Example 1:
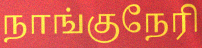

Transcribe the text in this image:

நாங்குநேரி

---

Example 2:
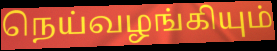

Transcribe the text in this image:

நெய்வழங்கியும்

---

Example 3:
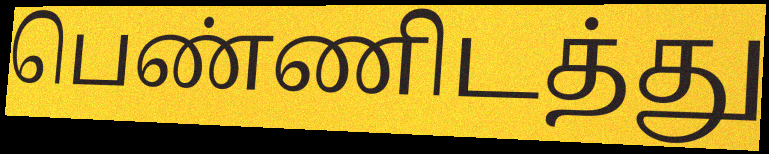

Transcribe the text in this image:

பெண்ணிடத்து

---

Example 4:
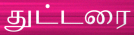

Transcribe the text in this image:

துட்டரை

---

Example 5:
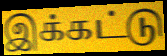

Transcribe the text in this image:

இக்கட்டு